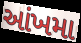
આંખમા